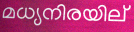
മധ്യനിരയില്